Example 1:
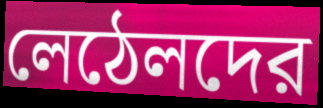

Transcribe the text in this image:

লেঠেলদের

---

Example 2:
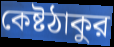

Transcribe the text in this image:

কেষ্টঠাকুর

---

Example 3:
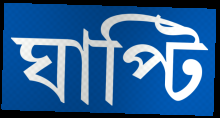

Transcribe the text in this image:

ঘাপ্টি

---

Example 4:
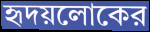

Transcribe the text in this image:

হৃদয়লোকের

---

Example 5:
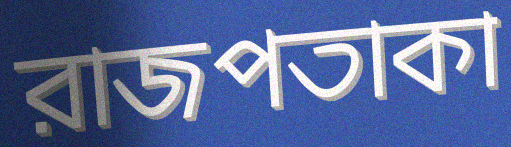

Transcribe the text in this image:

রাজপতাকা